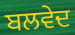
ਬਲਵੇਦ